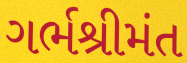
ગર્ભશ્રીમંત